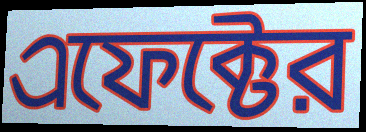
এফেক্টের